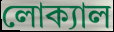
লোক্যাল